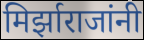
मिर्झाराजांनी